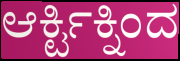
ಆರ್ಕ್ಟಿಕ್ನಿಂದ